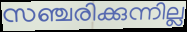
സഞ്ചരിക്കുന്നില്ല